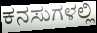
ಕನಸುಗಳಲ್ಲಿ